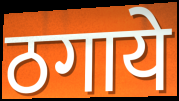
ठगाये